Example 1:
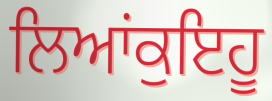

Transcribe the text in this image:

ਲਿਆਂਕੁਇਹੂ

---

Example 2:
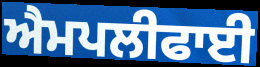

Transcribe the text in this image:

ਐਮਪਲੀਫਾਈ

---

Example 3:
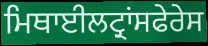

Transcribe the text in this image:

ਮਿਥਾਈਲਟ੍ਰਾਂਸਫੇਰੇਸ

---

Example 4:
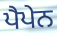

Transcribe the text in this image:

ਪੈਪੇਨ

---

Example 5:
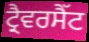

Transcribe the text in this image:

ਟ੍ਰੈਵਰਸੈੱਟ